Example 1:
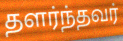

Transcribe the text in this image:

தளர்ந்தவர்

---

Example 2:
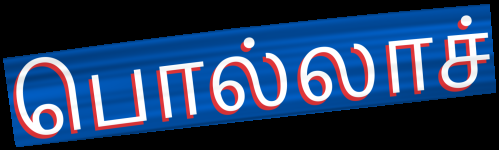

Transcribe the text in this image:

பொல்லாச்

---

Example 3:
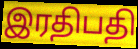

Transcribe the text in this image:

இரதிபதி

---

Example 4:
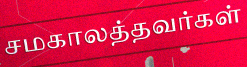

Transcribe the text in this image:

சமகாலத்தவர்கள்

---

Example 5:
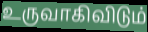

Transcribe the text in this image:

உருவாகிவிடும்